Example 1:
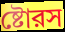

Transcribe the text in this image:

ষ্টোরস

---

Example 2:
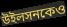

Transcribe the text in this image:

উইলসনকেও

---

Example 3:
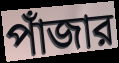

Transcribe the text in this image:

পাঁজার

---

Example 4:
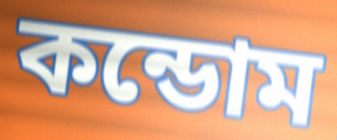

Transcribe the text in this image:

কন্ডোম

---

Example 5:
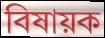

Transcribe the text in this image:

বিষায়ক